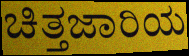
ಚಿತ್ತಜಾರಿಯ